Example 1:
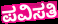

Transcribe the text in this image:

ಪವಿಸತಿ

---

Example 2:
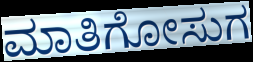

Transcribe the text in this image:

ಮಾತಿಗೋಸುಗ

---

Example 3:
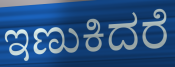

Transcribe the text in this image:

ಇಣುಕಿದರೆ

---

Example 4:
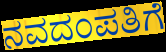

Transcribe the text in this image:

ನವದಂಪತಿಗೆ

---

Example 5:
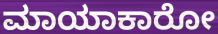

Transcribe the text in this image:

ಮಾಯಾಕಾರೋ